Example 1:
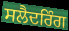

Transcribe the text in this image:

ਸਲੈਦਰਿੰਗ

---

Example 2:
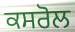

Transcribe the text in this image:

ਕਸਰੋਲ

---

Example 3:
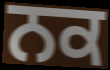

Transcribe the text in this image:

ਨਕ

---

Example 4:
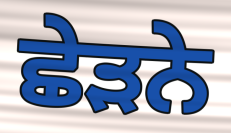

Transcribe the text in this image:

ਛੇੜਨੇ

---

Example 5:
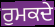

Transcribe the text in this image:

ਰੁਮਕਦੇ